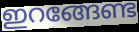
ഇറങ്ങേണ്ട